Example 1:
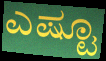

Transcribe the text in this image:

ಎಷ್ಟೂ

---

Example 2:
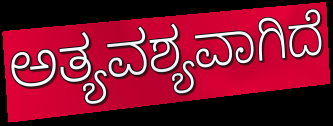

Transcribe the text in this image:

ಅತ್ಯವಶ್ಯವಾಗಿದೆ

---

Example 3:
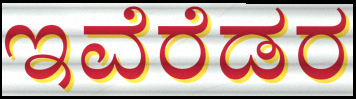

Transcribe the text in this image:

ಇವೆರೆಡರ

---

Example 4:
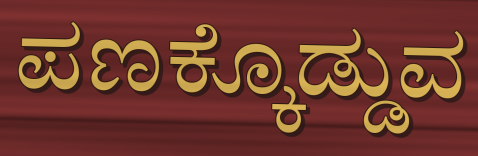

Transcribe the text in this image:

ಪಣಕ್ಕೊಡ್ಡುವ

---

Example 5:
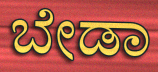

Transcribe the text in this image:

ಬೇಡಾ